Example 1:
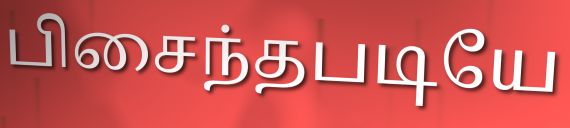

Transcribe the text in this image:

பிசைந்தபடியே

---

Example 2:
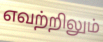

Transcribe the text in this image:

எவற்றிலும்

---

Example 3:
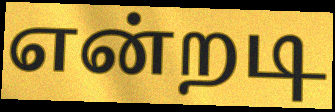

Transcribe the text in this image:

என்றடி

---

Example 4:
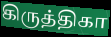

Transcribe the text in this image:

கிருத்திகா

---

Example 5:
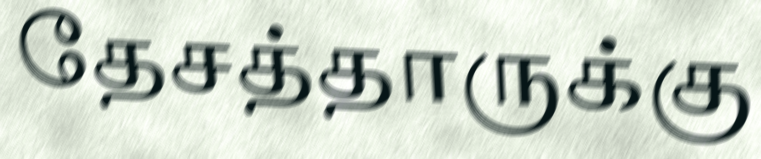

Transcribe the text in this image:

தேசத்தாருக்கு